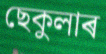
ছেকুলাৰ